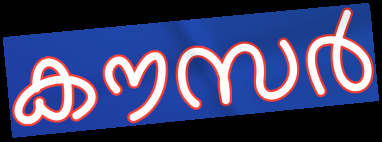
കൗസർ